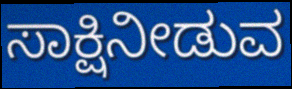
ಸಾಕ್ಷಿನೀಡುವ